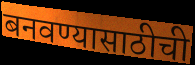
बनवण्यासाठीची